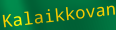
Kalaikkovan